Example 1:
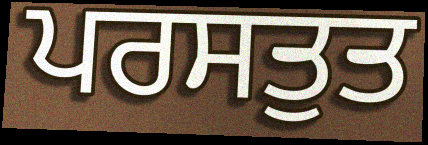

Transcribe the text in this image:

ਪਰਸਤੁਤ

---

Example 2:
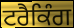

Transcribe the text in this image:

ਟਰੈਕਿੰਗ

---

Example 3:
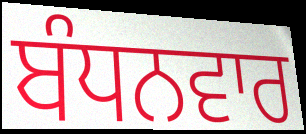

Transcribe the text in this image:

ਬੰਧਨਵਾਰ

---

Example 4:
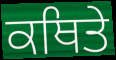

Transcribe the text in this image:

ਕਥਿਤੇ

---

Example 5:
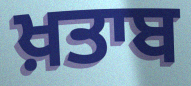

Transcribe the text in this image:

ਖ਼ਤਾਬ